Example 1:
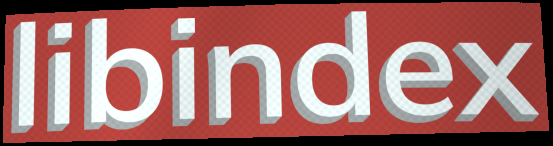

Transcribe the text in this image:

libindex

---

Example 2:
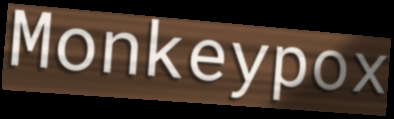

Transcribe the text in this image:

Monkeypox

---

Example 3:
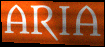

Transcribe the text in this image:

ARIA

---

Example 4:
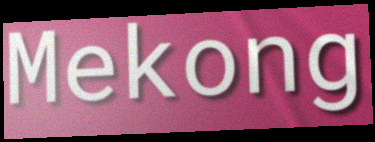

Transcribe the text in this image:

Mekong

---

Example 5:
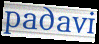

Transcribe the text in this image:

padavi